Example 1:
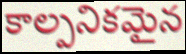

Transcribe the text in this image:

కాల్పనికమైన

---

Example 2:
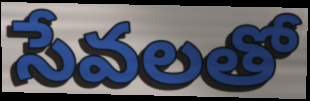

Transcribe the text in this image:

సేవలతో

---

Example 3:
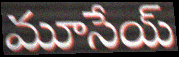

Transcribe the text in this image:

మూసేయ్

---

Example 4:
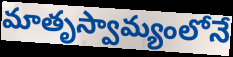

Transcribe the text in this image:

మాతృస్వామ్యంలోనే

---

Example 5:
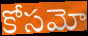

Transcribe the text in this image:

కోసమో